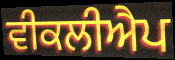
ਵੀਕਲੀਐਪ